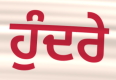
ਹੁੰਦਰੇ